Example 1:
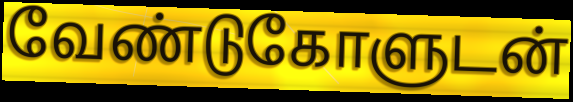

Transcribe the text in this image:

வேண்டுகோளுடன்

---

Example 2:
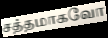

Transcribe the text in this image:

சத்தமாகவோ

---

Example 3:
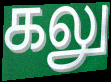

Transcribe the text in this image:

கலு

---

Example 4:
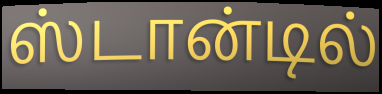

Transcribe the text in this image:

ஸ்டான்டில்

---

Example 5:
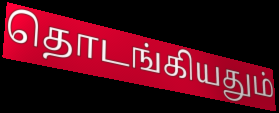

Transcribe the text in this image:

தொடங்கியதும்